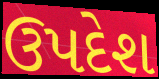
ઉપદેશ